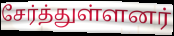
சேர்த்துள்ளனர்